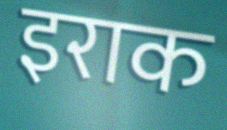
इराक